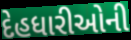
દેહધારીઓની